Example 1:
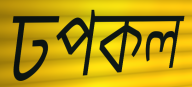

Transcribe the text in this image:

ঢপকল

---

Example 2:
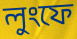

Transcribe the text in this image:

লুংফে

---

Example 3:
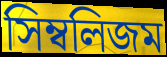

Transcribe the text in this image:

সিম্বলিজম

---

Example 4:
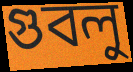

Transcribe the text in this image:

গুবলু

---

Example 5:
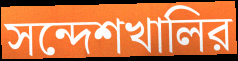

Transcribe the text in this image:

সন্দেশখালির